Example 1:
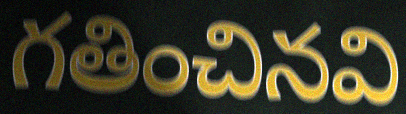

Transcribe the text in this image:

గతించినవి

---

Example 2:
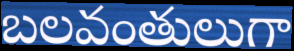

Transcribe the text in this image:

బలవంతులుగా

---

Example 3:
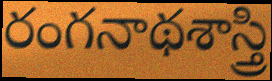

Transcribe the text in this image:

రంగనాథశాస్త్రి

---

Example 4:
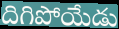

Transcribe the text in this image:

దిగిపోయేడు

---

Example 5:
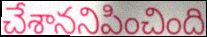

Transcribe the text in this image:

చేశాననిపించింది